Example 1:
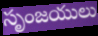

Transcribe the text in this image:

సృంజయులు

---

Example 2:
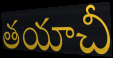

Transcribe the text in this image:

తయాచీ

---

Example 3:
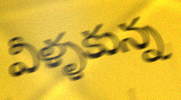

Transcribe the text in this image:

వీళ్ళకున్న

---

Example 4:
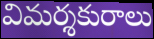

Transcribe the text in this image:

విమర్శకురాలు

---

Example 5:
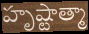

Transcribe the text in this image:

హృష్టాత్మా